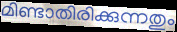
മിണ്ടാതിരിക്കുന്നതും